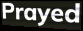
Prayed